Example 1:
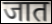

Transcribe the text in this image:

जात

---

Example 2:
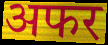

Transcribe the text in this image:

अफर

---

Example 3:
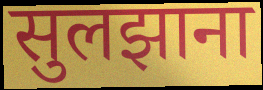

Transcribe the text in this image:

सुलझाना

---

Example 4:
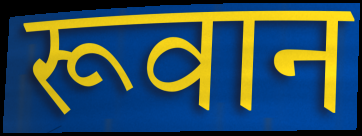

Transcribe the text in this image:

रूवान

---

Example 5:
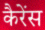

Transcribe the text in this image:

कैरेंस